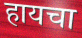
हायचा